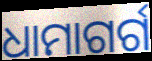
ଧାମାଗର୍ଗ